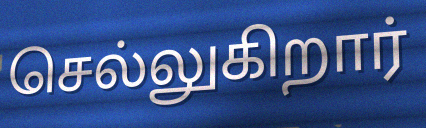
செல்லுகிறார்